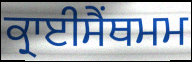
ਕ੍ਰਾਈਸੈਂਥਮਮ